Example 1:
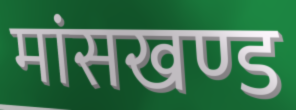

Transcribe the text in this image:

मांसखण्ड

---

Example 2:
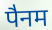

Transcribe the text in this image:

पैनम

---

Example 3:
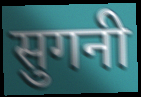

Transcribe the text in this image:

सुगनी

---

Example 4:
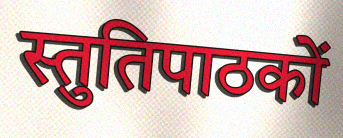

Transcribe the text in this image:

स्तुतिपाठकों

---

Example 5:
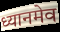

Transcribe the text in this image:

ध्यानमेव